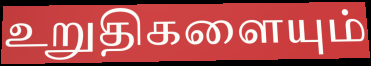
உறுதிகளையும்